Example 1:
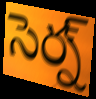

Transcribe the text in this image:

సెర్న్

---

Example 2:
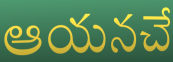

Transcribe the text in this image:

ఆయనచే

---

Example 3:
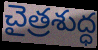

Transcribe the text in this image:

చైత్రశుద్ధ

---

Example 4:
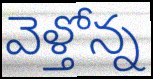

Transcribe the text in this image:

వెళ్తోన్న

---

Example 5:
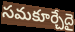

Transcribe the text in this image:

సమకూర్చేదై